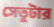
সেতুটার